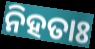
ନିହତାଃ